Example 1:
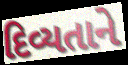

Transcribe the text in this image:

દિવ્યતાને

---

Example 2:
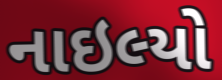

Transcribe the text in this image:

નાઇલ્યો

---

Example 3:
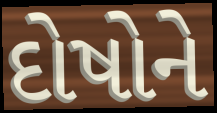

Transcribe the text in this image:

દોષોને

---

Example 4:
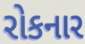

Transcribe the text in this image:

રોકનાર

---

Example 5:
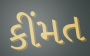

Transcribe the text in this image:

કીંમત